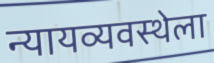
न्यायव्यवस्थेला